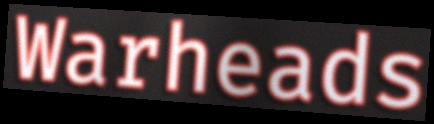
Warheads